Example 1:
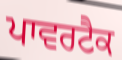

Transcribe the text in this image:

ਪਾਵਰਟੈਕ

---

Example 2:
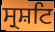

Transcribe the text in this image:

ਸ੍ਰਸ਼ਟਿ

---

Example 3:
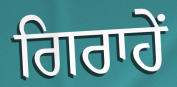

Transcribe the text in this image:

ਗਿਰਾਹੇਂ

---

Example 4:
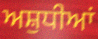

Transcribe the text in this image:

ਅਸ਼ੁਧੀਆਂ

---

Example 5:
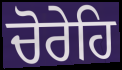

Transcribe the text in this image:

ਚੋਰੇਹਿ